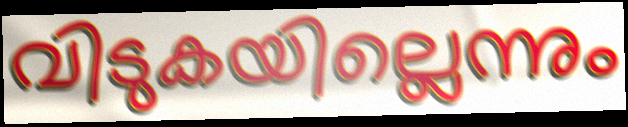
വിടുകയില്ലെന്നും